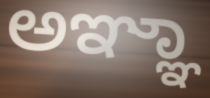
ಅಞ್ಞಾ